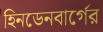
হিনডেনবার্গের